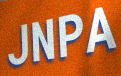
JNPA